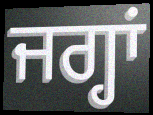
ਜਗ੍ਹਾਂ